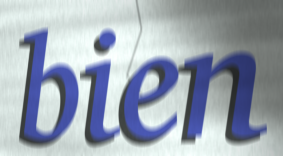
bien